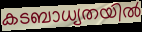
കടബാധ്യതയിൽ